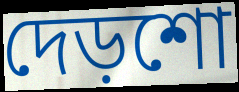
দেড়শো